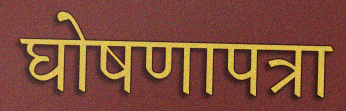
घोषणापत्रा